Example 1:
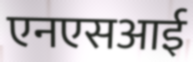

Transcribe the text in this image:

एनएसआई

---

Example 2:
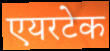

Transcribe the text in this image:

एयरटेक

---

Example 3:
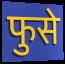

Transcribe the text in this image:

फुसे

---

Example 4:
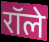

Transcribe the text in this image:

रॉले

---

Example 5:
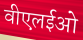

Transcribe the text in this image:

वीएलईओ